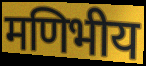
मणिभीय